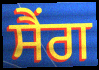
ਸੈਂਗ